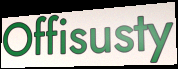
Offisusty